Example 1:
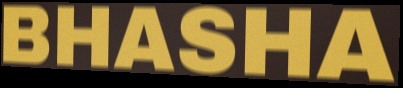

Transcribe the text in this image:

BHASHA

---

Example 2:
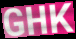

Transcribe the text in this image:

GHK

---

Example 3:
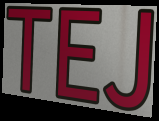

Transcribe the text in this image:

TEJ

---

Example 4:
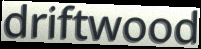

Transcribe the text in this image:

driftwood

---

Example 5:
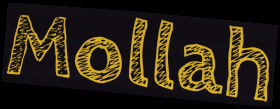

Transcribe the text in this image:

Mollah